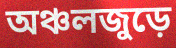
অঞ্চলজুড়ে